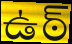
ఉఠ్